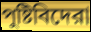
পুষ্টিবিদেরা